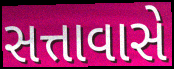
સત્તાવાસે